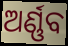
ଅର୍ଣ୍ଣବ